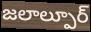
జలాల్పూర్